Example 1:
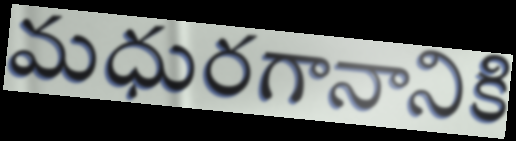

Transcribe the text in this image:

మధురగానానికి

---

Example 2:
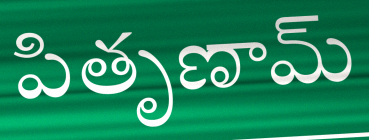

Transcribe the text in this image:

పితృణామ్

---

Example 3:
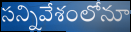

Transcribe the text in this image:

సన్నివేశంలోనూ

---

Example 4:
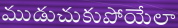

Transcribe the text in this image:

ముడుచుకుపోయేలా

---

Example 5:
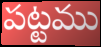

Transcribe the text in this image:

పట్టము